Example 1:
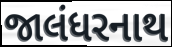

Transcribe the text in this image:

જાલંધરનાથ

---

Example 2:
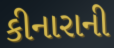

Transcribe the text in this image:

કીનારાની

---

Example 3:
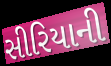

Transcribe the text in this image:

સીરિયાની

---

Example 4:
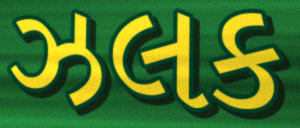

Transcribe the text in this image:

ઝલક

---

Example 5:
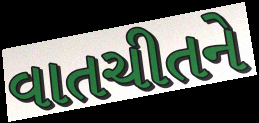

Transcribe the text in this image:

વાતચીતને